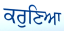
ਕਰੁਣਿਆ